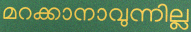
മറക്കാനാവുന്നില്ല